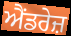
ਐਂਡਰੇਜ਼